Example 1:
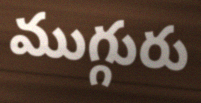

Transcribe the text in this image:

ముగ్గురు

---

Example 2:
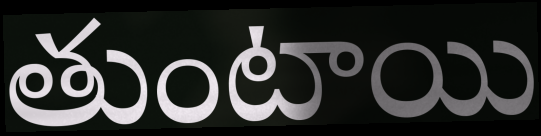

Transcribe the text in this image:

తుంటాయి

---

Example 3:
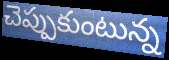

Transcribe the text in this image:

చెప్పుకుంటున్న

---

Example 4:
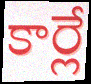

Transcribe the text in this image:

కార్లే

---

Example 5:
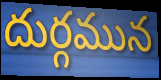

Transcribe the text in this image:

దుర్గమున